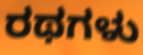
ರಥಗಳು